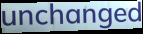
unchanged